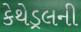
કેથેડ્રલની